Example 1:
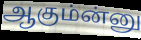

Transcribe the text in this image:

ஆகும்ன்னு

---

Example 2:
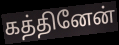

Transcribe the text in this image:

கத்தினேன்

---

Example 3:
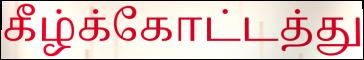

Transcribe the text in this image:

கீழ்க்கோட்டத்து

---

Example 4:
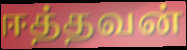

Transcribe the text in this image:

ஈத்தவன்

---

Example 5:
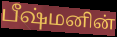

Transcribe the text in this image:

பீஷ்மனின்